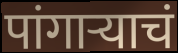
पांगाऱ्याचं